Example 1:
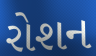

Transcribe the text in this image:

રોશન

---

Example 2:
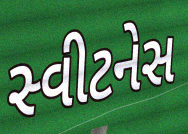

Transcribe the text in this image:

સ્વીટનેસ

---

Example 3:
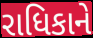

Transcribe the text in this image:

રાધિકાને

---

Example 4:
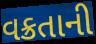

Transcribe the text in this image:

વક્રતાની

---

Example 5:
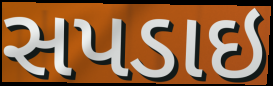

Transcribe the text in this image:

સપડાઇ